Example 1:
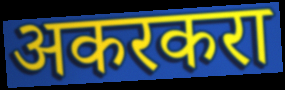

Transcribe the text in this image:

अकरकरा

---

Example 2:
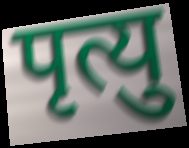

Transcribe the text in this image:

पृत्यु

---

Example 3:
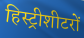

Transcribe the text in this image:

हिस्ट्रीशीटरों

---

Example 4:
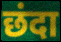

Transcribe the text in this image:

छंदा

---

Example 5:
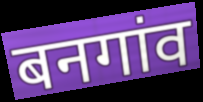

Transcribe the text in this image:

बनगांव